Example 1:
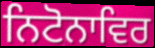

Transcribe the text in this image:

ਨਿਟੋਨਾਵਿਰ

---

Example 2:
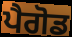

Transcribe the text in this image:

ਪੈਗੋਡ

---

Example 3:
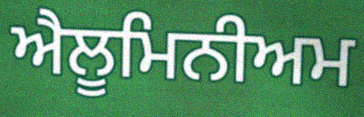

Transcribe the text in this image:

ਐਲੂਮਿਨੀਅਮ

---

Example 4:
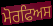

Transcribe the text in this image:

ਮੋਰਫਿਅਸ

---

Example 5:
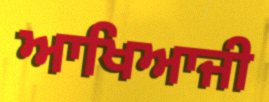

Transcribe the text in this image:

ਆਖਿਆਜੀ